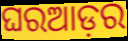
ଘରଆଡ଼ର